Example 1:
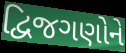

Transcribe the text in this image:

દ્વિજગણોને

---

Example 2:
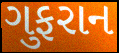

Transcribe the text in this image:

ગુફરાન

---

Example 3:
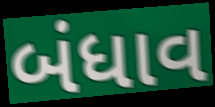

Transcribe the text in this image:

બંધાવ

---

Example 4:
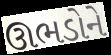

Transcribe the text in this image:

ઊભડોને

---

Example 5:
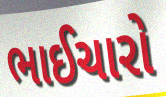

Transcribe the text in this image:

ભાઈચારો